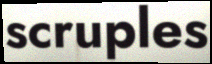
scruples